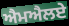
ਐਮਐਲਏ